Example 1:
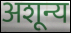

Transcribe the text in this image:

अशून्य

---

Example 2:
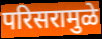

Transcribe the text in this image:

परिसरामुळे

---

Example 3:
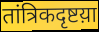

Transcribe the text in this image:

तांत्रिकदृष्टय़ा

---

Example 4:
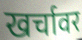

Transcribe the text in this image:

खर्चावर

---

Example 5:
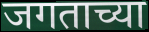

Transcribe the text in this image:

जगताच्या